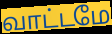
வாட்டமே